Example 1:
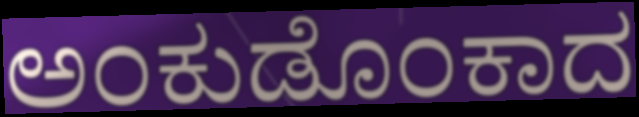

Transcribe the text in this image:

ಅಂಕುಡೊಂಕಾದ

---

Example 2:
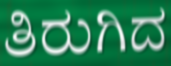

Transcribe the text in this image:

ತಿರುಗಿದ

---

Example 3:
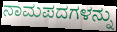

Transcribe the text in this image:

ನಾಮಪದಗಳನ್ನು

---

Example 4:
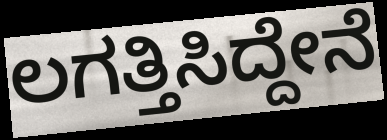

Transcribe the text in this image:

ಲಗತ್ತಿಸಿದ್ದೇನೆ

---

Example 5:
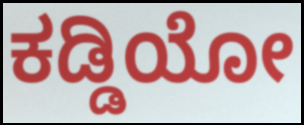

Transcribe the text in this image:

ಕಡ್ಡಿಯೋ